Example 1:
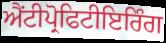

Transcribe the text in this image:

ਐਂਟੀਪ੍ਰੋਫਿਟੀਇਰਿੰਗ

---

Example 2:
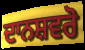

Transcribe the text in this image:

ਦਾਨਸ਼ਵਰੋ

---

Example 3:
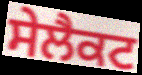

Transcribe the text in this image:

ਸੇਲੈਕਟ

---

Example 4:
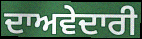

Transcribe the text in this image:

ਦਾਅਵੇਦਾਰੀ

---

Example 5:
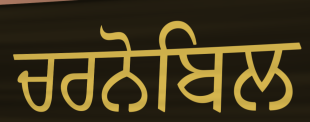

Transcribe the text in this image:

ਚਰਨੋਬਿਲ